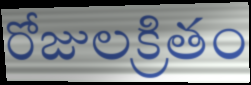
రోజులక్రితం